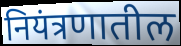
नियंत्रणातील